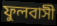
ফুলবাসী